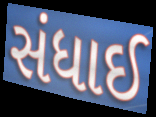
સંધાઈ